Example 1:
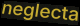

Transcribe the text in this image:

neglecta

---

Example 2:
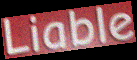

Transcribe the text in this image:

Liable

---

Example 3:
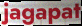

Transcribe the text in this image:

jagapat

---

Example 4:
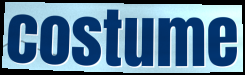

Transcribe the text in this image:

costume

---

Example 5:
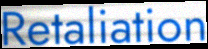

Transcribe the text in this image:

Retaliation